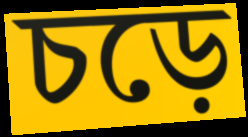
চড়ে